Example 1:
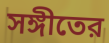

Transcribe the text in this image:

সঙ্গীতের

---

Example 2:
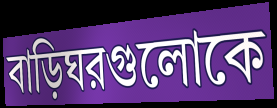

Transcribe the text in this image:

বাড়িঘরগুলোকে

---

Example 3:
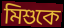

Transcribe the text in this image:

মিশুকে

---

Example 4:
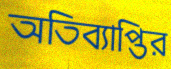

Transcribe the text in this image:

অতিব্যাপ্তির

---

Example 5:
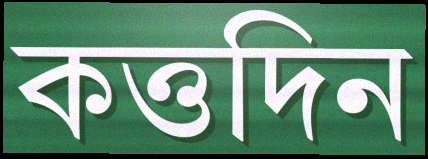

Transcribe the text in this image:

কত্তদিন